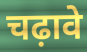
चढ़ावे